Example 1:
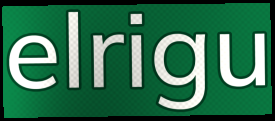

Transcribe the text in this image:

elrigu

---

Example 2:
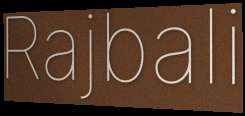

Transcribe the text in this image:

Rajbali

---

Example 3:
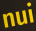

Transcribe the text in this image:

nui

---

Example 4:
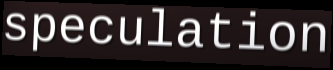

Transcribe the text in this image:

speculation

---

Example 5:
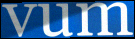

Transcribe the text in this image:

vum